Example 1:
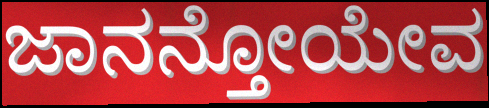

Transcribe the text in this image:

ಜಾನನ್ತೋಯೇವ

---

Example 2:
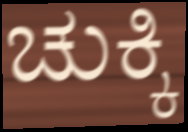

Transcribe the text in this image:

ಚುಕ್ಕಿ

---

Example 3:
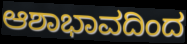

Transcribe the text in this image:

ಆಶಾಭಾವದಿಂದ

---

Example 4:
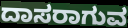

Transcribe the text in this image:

ದಾಸರಾಗುವ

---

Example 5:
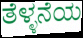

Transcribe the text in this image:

ತೆಳ್ಳನೆಯ